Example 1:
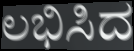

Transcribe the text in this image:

ಲಭಿಸಿದ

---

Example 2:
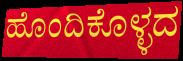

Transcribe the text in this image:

ಹೊಂದಿಕೊಳ್ಳದ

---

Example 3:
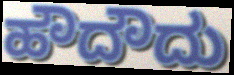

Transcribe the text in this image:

ಹೌದೌದು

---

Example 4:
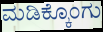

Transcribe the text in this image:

ಮಡಿಕ್ಕೊಂಗು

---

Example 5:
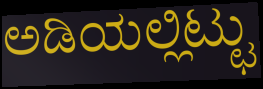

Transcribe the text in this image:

ಅಡಿಯಲ್ಲಿಟ್ಟು